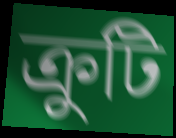
ক্রুটি